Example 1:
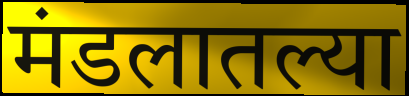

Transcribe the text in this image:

मंडलातल्या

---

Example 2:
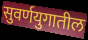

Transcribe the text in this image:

सुवर्णयुगातील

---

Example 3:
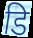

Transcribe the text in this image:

डि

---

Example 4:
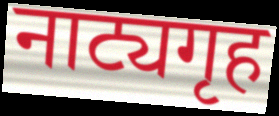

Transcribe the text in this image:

नाट्यगृह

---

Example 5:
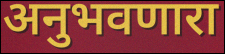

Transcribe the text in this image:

अनुभवणारा